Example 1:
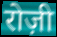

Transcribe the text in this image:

रोज़ी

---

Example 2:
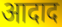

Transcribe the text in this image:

आदाद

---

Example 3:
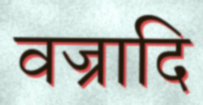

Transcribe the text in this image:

वज्रादि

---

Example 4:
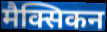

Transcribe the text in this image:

मैक्सिकन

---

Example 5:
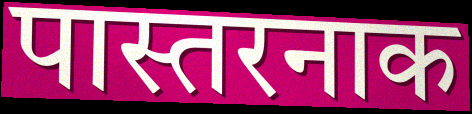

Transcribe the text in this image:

पास्तरनाक